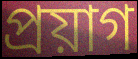
প্ৰয়াগ